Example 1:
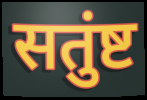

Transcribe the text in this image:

सतुंष्ट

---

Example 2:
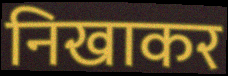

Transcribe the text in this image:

निखाकर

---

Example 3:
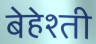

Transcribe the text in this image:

बेहेश्ती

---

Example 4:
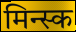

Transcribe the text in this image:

मिन्स्क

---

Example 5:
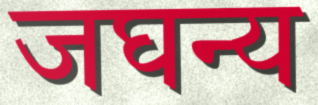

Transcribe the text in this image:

जघन्‍य